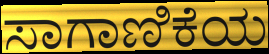
ಸಾಗಾಣಿಕೆಯ